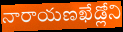
నారాయణఖేడ్లోని